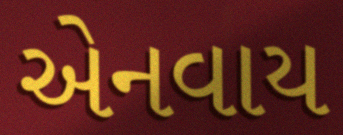
એનવાય